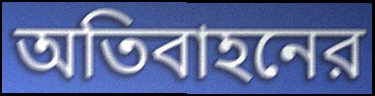
অতিবাহনের